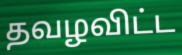
தவழவிட்ட